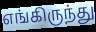
எங்கிருந்து